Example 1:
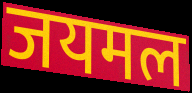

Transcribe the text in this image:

जयमल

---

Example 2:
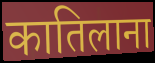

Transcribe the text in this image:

कातिलाना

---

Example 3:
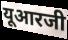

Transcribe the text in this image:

यूआरजी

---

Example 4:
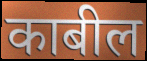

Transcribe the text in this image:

काबील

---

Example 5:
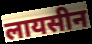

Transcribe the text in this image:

लायसीन